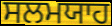
ਸਲਮਯਾਹ